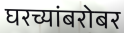
घरच्यांबरोबर